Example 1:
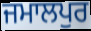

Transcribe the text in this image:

ਜਮਾਲਪੁਰ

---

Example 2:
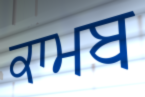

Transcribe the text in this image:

ਕਾਮਬ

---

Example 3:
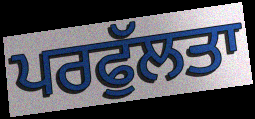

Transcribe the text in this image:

ਪਰਫੁੱਲਤਾ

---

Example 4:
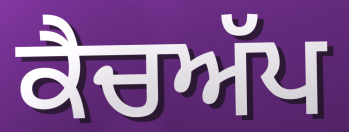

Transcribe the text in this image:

ਕੈਚਅੱਪ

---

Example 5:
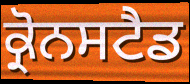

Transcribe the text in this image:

ਕ੍ਰੋਨਸਟੈਡ